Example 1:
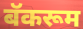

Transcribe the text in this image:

बॅकरूम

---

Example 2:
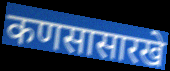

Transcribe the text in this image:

कणसासारखे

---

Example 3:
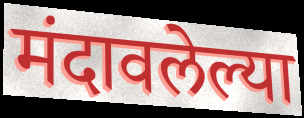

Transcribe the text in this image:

मंदावलेल्या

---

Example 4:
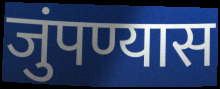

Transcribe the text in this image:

जुंपण्यास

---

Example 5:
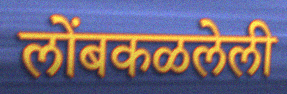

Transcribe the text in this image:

लोंबकळलेली